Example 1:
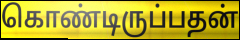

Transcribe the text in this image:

கொண்டிருப்பதன்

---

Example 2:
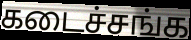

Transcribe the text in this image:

கடைச்சங்க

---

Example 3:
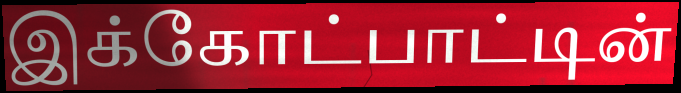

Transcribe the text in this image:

இக்கோட்பாட்டின்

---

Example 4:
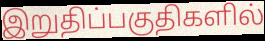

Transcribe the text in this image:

இறுதிப்பகுதிகளில்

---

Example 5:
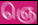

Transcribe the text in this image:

ஞெ